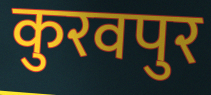
कुरवपुर